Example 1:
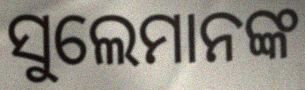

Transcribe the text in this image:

ସୁଲେମାନଙ୍କ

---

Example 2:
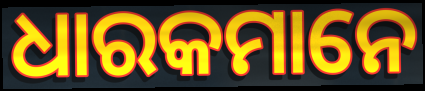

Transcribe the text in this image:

ଧାରକମାନେ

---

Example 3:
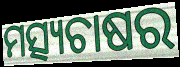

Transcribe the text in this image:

ମତ୍ସ୍ୟଚାଷର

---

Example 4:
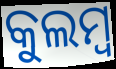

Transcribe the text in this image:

କୁଲମ୍ବ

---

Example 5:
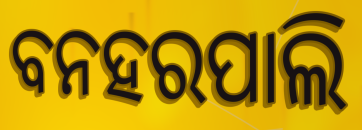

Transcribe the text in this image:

ବନହରପାଲି